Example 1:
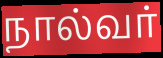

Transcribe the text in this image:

நால்வர்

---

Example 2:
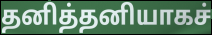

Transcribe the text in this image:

தனித்தனியாகச்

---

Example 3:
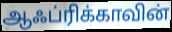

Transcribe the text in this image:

ஆஃப்ரிக்காவின்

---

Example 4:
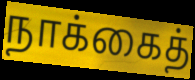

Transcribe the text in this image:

நாக்கைத்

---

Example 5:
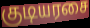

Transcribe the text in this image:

குடியரசை